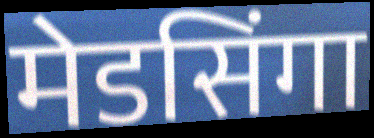
मेडसिंगा